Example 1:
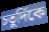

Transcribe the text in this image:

চতুর্দিকে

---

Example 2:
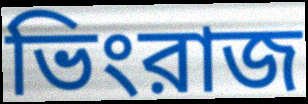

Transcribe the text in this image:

ভিংরাজ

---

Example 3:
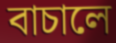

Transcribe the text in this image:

বাচালে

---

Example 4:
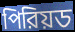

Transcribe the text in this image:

পিরিয়ড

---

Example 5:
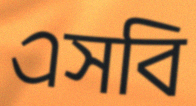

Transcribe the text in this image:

এসবি